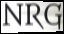
NRG